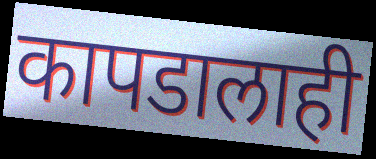
कापडालाही